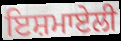
ਇਸ਼ਮਾਏਲੀ